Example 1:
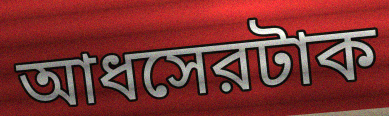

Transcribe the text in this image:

আধসেরটাক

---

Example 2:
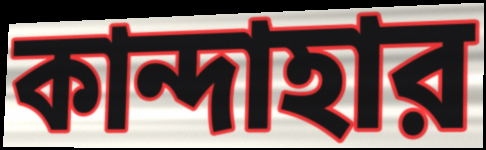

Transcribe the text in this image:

কান্দাহার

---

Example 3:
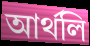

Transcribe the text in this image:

আর্থলি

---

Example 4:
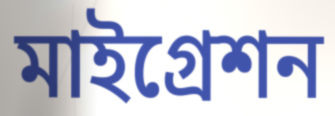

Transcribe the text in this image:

মাইগ্রেশন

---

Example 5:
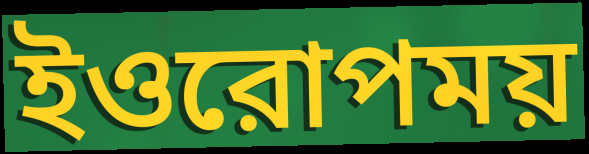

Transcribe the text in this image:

ইওরোপময়